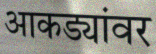
आकड्यांवर